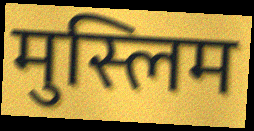
मुस्लिम